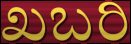
ಖಬರಿ